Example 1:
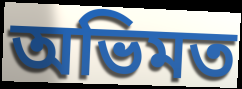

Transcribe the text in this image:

অভিমত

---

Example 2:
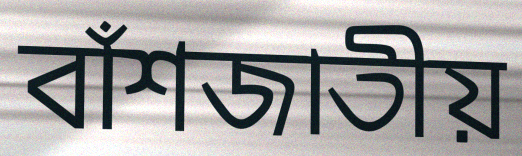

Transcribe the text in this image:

বাঁশজাতীয়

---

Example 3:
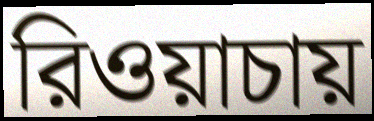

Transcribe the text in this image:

রিওয়াচায়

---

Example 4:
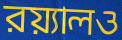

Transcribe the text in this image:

রয়্যালও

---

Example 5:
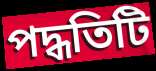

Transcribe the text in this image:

পদ্ধতিটি